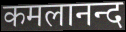
कमलानन्द